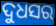
ଦୁଧସର